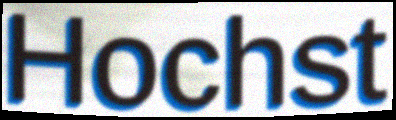
Hochst